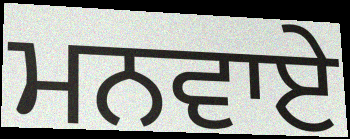
ਮਨਵਾਏ